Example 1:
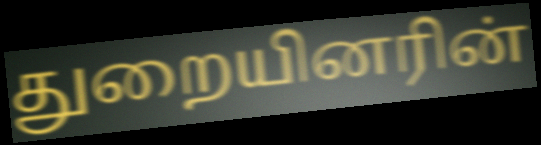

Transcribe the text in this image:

துறையினரின்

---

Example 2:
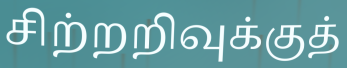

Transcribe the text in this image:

சிற்றறிவுக்குத்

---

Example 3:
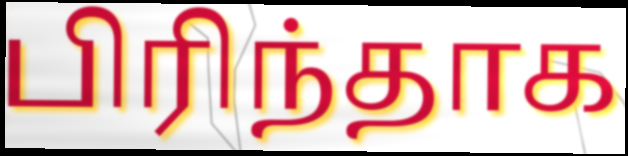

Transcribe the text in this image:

பிரிந்தாக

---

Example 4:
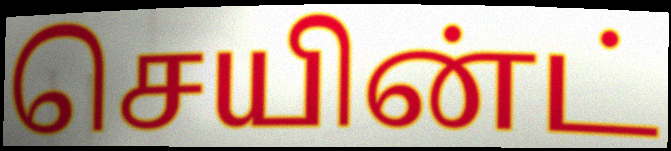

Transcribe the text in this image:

செயின்ட்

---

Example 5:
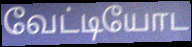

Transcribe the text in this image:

வேட்டியோட